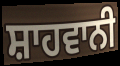
ਸ਼ਾਹਵਾਨੀ